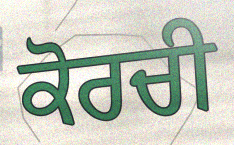
ਕੋਰਚੀ